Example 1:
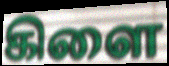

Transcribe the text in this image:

கிளை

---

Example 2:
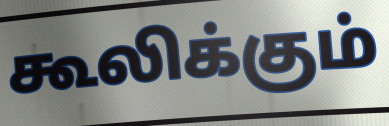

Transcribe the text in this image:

கூலிக்கும்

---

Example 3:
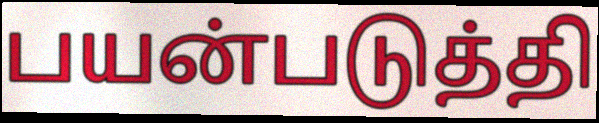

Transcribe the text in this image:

பயன்படுத்தி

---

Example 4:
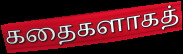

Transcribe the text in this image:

கதைகளாகத்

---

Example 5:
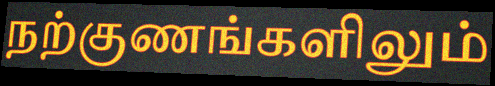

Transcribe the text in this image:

நற்குணங்களிலும்